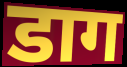
डाग